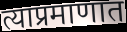
त्याप्रमाणात